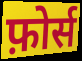
फ़ोर्स